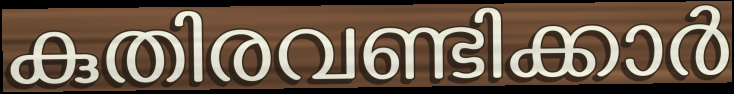
കുതിരവണ്ടിക്കാർ